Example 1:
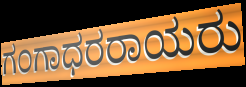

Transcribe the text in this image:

ಗಂಗಾಧರರಾಯರು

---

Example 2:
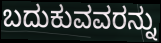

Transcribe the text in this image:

ಬದುಕುವವರನ್ನು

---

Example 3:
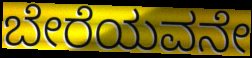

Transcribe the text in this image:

ಬೇರೆಯವನೇ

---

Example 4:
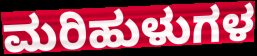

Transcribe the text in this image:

ಮರಿಹುಳುಗಳ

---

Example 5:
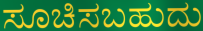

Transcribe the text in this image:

ಸೂಚಿಸಬಹುದು